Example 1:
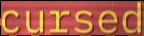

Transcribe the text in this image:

cursed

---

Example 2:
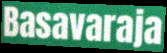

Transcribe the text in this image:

Basavaraja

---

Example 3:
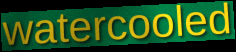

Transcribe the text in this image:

watercooled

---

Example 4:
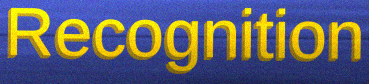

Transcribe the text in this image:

Recognition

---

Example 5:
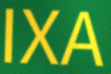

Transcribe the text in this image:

IXA